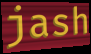
jash